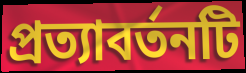
প্রত্যাবর্তনটি